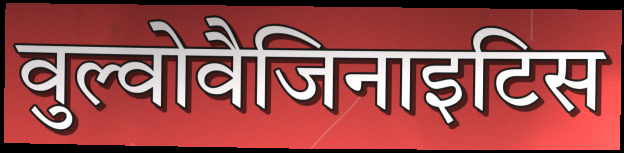
वुल्वोवैजिनाइटिस